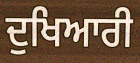
ਦੁਖਿਆਰੀ